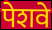
पेशवे